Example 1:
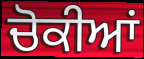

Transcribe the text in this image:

ਚੋਕੀਆਂ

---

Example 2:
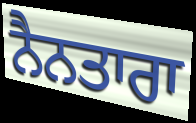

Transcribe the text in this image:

ਨੈਨਤਾਰਾ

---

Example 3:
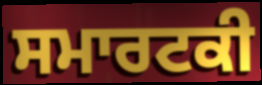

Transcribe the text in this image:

ਸਮਾਰਟਕੀ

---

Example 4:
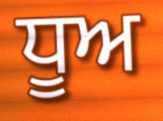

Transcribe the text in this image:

ਧੂਅ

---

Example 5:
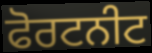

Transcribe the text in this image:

ਫੋਰਟਨੀਟ